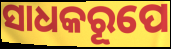
ସାଧକରୂପେ